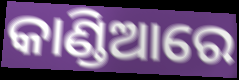
କାଣ୍ଡିଆରେ